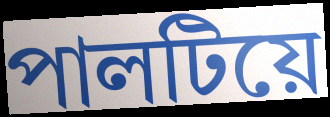
পালটিয়ে